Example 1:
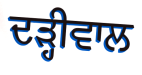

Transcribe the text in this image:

ਦੜ੍ਹੀਵਾਲ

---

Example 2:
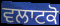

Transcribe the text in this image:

ਵਲਾਟਕੋ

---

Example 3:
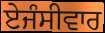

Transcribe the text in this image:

ਏਜੰਸੀਵਾਰ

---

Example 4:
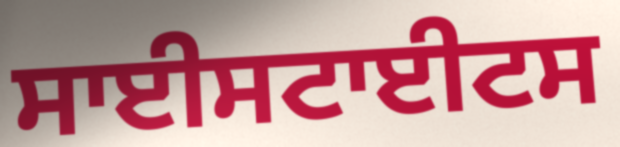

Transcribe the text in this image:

ਸਾਈਸਟਾਈਟਸ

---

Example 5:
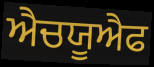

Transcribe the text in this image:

ਐਚਯੂਐਫ